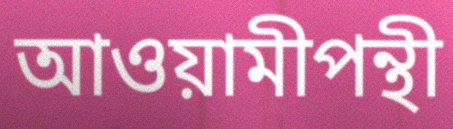
আওয়ামীপন্থী